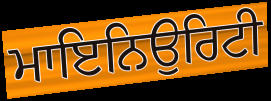
ਮਾਇਨਿਉਰਿਟੀ